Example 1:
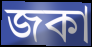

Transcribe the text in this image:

জকা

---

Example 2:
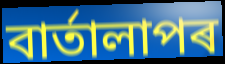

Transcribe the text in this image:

বাৰ্তালাপৰ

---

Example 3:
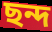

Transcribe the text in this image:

ছন্দ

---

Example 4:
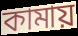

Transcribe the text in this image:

কামায়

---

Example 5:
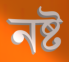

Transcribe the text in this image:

নষ্ট